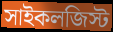
সাইকলজিস্ট